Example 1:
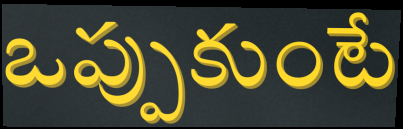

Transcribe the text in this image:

ఒప్పుకుంటే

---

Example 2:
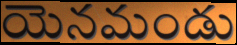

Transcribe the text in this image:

యెనమండు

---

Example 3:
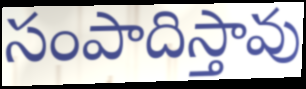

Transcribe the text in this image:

సంపాదిస్తావు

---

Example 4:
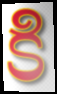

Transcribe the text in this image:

కి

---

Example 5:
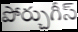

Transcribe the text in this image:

పోర్చుగీస్